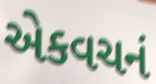
એકવચનં